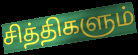
சித்திகளும்